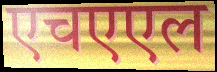
एचएएल